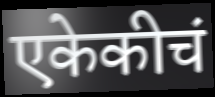
एकेकीचं